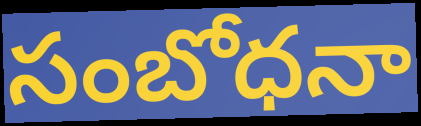
సంబోధనా